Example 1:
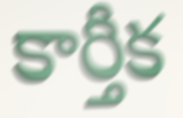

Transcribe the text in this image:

కార్తీక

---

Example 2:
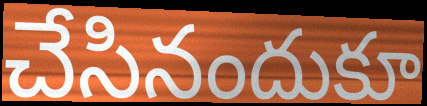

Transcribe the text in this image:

చేసినందుకూ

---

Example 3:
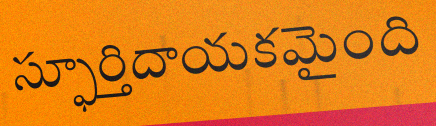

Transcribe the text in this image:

స్ఫూర్తిదాయకమైంది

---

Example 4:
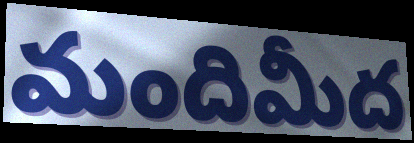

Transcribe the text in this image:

మందిమీద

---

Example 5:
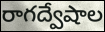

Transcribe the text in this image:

రాగద్వేషాల